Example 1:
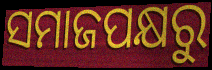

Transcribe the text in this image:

ସମାଜପକ୍ଷରୁ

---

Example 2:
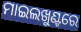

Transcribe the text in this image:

ମାଇଲଖୁଣ୍ଟରେ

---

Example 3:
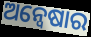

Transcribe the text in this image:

ଅନ୍ବେଷାର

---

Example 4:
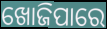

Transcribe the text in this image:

ଖୋଜିପାରେ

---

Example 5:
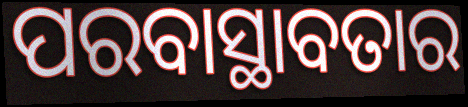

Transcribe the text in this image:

ପରବାସ୍ଥାବତାର